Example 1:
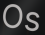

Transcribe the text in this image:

Os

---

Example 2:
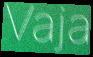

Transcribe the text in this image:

Vaja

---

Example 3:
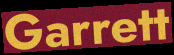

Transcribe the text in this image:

Garrett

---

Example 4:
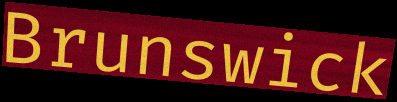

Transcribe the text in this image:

Brunswick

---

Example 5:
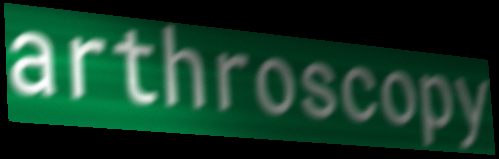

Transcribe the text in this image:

arthroscopy